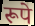
रूपे